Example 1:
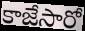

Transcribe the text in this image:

కాజేసారో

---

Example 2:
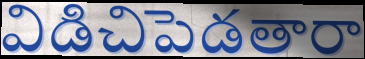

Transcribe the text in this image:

విడిచిపెడతారా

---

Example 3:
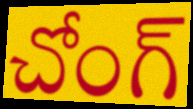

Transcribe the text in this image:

చోంగ్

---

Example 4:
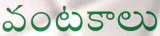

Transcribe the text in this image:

వంటకాలు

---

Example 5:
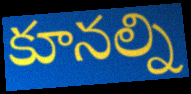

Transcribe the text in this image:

కూనల్ని